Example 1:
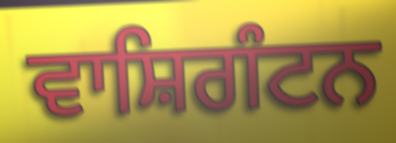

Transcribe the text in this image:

ਵਾਸ਼ਿਗੰਟਨ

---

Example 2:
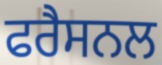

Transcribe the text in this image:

ਫਰੈਸਨਲ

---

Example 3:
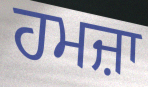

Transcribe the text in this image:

ਹਮਜ਼ਾ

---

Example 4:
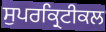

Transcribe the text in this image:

ਸੁਪਰਕ੍ਰਿਟੀਕਲ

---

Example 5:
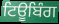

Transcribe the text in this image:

ਟਿਊਬਿੰਗ